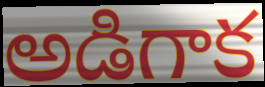
అడిగాక